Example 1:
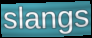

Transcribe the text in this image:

slangs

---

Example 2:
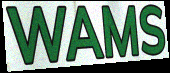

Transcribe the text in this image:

WAMS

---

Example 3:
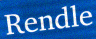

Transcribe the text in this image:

Rendle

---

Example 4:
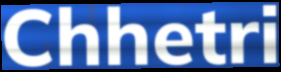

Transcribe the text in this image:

Chhetri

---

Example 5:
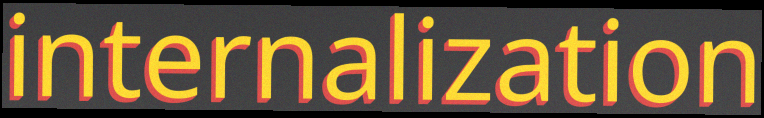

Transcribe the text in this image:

internalization